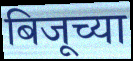
बिजूच्या